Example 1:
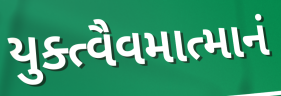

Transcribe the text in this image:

યુક્ત્વૈવમાત્માનં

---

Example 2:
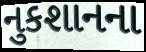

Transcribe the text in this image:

નુકશાનના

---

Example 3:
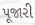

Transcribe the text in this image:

પૂજારી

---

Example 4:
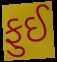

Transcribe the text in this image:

ફુઈ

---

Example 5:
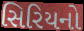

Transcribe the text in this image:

સિરિયનો